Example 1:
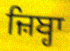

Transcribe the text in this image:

ਜ਼ਿਬ੍ਹਾ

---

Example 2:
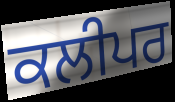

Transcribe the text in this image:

ਕਲੀਪਰ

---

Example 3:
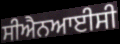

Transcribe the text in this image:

ਸੀਐਨਆਈਸੀ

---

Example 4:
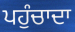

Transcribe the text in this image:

ਪਹੁੰਚਾਦਾ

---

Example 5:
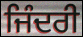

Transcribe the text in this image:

ਜਿੰਦਰੀ